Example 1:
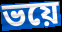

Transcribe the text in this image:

ভয়ে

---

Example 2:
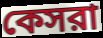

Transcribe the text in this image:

কেসরা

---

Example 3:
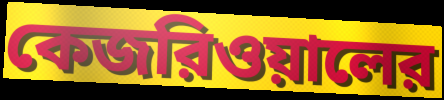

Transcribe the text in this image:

কেজরিওয়ালের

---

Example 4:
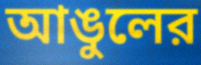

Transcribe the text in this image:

আঙুলের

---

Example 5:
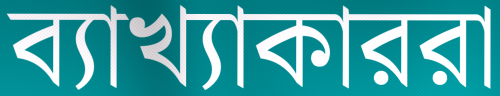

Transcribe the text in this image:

ব্যাখ্যাকাররা